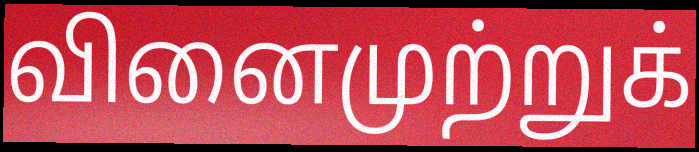
வினைமுற்றுக்